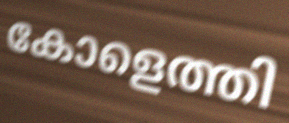
കോളെത്തി